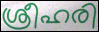
ശ്രീഹരി